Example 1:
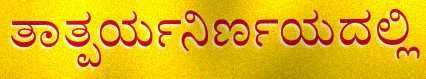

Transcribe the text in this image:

ತಾತ್ಪರ್ಯನಿರ್ಣಯದಲ್ಲಿ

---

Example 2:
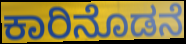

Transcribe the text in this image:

ಕಾರಿನೊಡನೆ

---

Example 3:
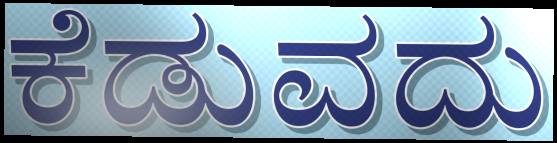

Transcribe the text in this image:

ಕೆಡುವದು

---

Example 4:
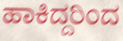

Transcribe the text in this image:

ಹಾಕಿದ್ದರಿಂದ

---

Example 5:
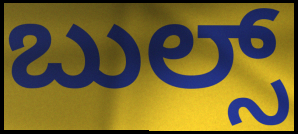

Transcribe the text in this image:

ಬುಲ್ಸ್